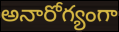
అనారోగ్యంగా